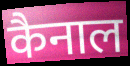
कैनाल